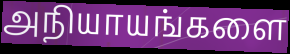
அநியாயங்களை